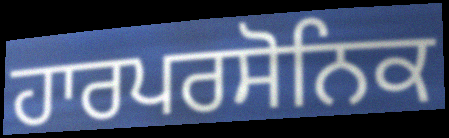
ਹਾਰਪਰਸੋਨਿਕ